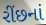
રીંછનાં